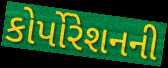
કોર્પોરેશનની